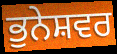
ਭੁਨੇਸ਼ਵਰ